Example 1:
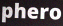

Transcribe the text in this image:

phero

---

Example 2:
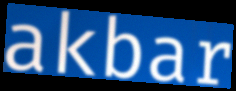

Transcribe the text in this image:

akbar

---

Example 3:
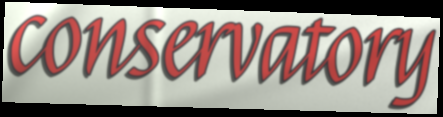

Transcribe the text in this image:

conservatory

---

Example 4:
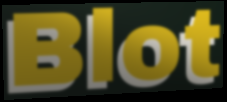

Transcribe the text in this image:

Blot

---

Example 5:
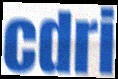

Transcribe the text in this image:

cdri